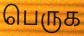
பெருக